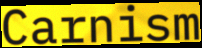
Carnism